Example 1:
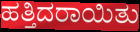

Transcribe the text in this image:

ಹತ್ತಿದರಾಯಿತು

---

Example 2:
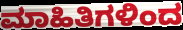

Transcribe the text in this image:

ಮಾಹಿತಿಗಳಿಂದ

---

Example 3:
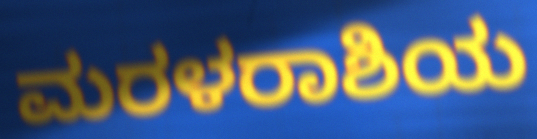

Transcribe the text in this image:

ಮರಳರಾಶಿಯ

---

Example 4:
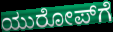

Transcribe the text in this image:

ಯುರೋಪ್‌ಗೆ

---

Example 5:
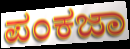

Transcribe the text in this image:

ಪಂಕಜಾ